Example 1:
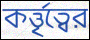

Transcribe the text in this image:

কর্ত্তৃত্বের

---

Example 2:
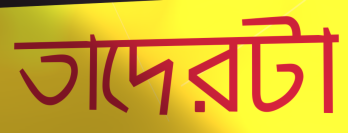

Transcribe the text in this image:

তাদেরটা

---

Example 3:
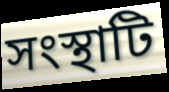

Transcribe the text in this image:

সংস্থাটি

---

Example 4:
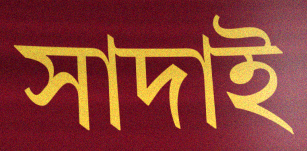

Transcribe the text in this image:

সাদাই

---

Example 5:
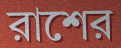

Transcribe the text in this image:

রাশের